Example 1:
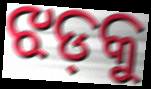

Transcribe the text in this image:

ଝଡ଼କୁ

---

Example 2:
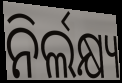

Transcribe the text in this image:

ନିର୍ଲକ୍ଷ୍ୟ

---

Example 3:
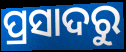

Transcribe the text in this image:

ପ୍ରସାଦରୁ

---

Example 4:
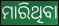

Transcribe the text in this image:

ମାରିଥିବା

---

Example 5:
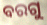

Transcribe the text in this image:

ବରଗୁ